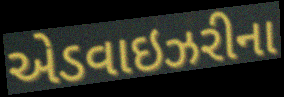
એડવાઇઝરીના